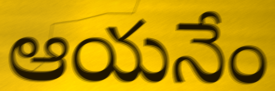
ఆయనేం